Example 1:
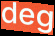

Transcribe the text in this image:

deg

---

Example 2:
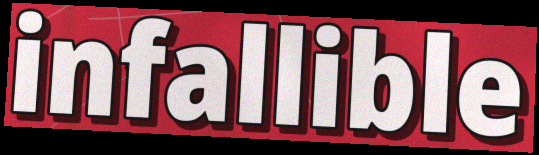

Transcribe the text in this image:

infallible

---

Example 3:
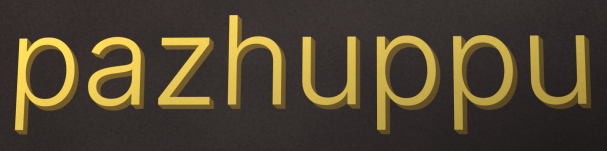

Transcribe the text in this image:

pazhuppu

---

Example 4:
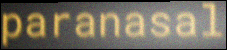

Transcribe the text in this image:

paranasal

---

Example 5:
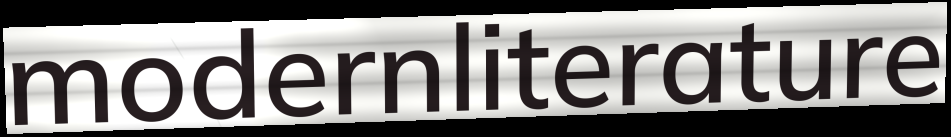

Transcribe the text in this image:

modernliterature